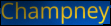
Champney